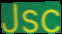
Jsc